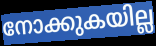
നോക്കുകയില്ല